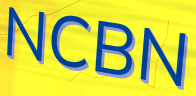
NCBN